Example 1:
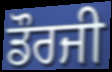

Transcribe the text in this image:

ਡੌਰਜੀ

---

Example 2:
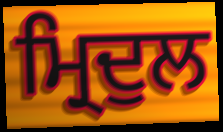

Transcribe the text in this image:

ਮ੍ਰਿਦੁਲ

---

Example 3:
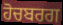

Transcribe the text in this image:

ਹੋਚਬਰਗ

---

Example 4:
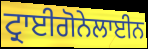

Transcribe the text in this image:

ਟ੍ਰਾਈਗੋਨੇਲਾਈਨ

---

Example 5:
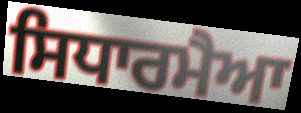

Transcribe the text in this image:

ਸਿਧਾਰਮੈਆ